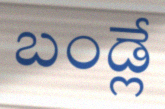
బండ్లే